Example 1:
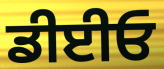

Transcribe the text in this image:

ਡੀਈਓ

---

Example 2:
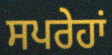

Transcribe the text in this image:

ਸਪਰੇਹਾਂ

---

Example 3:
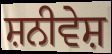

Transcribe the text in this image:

ਸ਼ਨੀਵੇਸ਼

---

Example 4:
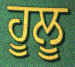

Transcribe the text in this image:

ਹੂਲੂ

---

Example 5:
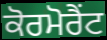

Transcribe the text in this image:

ਕੋਰਮੋਰੈਂਟ